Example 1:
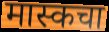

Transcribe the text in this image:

मास्कचा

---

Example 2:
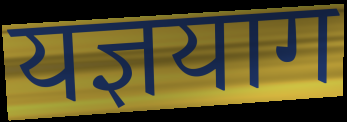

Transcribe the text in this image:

यज्ञयाग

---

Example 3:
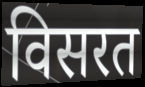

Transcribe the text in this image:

विसरत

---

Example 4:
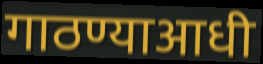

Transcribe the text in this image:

गाठण्याआधी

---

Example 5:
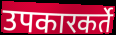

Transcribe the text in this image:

उपकारकर्ते